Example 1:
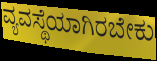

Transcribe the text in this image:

ವ್ಯವಸ್ಥೆಯಾಗಿರಬೇಕು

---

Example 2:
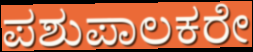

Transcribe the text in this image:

ಪಶುಪಾಲಕರೇ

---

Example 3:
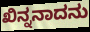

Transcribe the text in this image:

ಖಿನ್ನನಾದನು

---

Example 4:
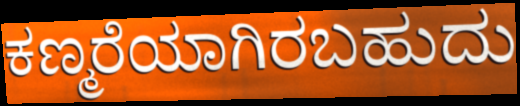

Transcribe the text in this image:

ಕಣ್ಮರೆಯಾಗಿರಬಹುದು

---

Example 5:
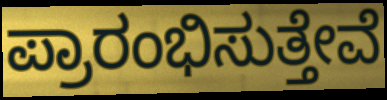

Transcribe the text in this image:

ಪ್ರಾರಂಭಿಸುತ್ತೇವೆ